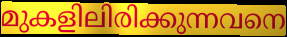
മുകളിലിരിക്കുന്നവനെ